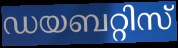
ഡയബറ്റിസ്